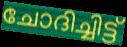
ചോദിച്ചിട്ട്